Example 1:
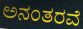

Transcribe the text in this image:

ಅನಂತರವೆ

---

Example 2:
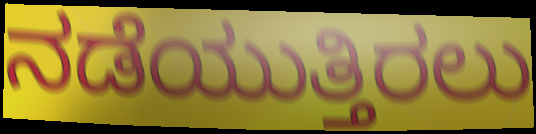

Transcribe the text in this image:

ನಡೆಯುತ್ತಿರಲು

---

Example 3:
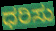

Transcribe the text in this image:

ಧರಿಸು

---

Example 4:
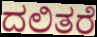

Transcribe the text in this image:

ದಲಿತರೆ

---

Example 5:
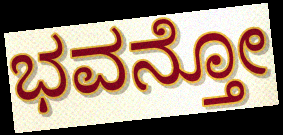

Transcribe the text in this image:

ಭವನ್ತೋ